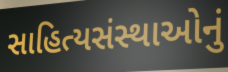
સાહિત્યસંસ્થાઓનું